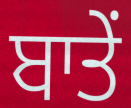
ਬਾਤੇਂ